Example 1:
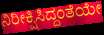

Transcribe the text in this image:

ನಿರೀಕ್ಷಿಸಿದ್ದಂತೆಯೇ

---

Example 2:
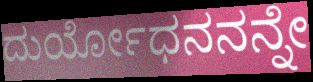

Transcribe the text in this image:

ದುರ್ಯೋಧನನನ್ನೇ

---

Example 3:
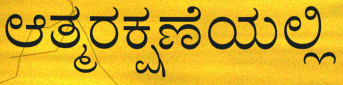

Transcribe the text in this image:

ಆತ್ಮರಕ್ಷಣೆಯಲ್ಲಿ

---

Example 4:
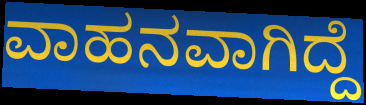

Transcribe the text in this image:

ವಾಹನವಾಗಿದ್ದೆ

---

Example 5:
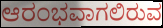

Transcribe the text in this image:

ಆರಂಭವಾಗಲಿರುವ